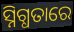
ସ୍ନିଗ୍ଧତାରେ